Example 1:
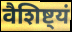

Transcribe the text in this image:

वैशिष्ट्यं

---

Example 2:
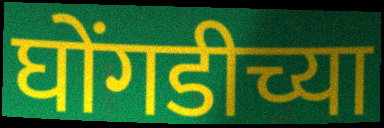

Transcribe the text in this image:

घोंगडीच्या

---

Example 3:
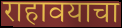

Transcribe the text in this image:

राहावयाचा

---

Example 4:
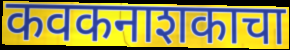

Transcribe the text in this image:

कवकनाशकाचा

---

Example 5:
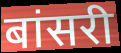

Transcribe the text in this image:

बांसरी